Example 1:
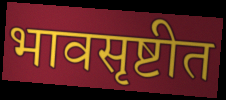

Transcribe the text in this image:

भावसृष्टीत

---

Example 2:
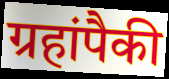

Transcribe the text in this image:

ग्रहांपैकी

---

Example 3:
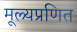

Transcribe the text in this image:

मूल्यप्रणित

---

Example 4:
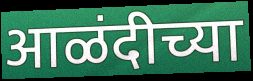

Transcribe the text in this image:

आळंदीच्या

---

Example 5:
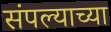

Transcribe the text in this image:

संपल्याच्या